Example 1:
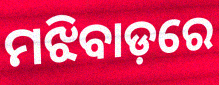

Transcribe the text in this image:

ମଝିବାଡ଼ରେ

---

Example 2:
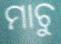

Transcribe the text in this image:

ମାଚୁ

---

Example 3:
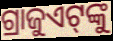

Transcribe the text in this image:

ଗ୍ରାଜୁଏଟ୍‌ଙ୍କୁ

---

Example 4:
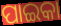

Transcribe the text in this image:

ପାଇକା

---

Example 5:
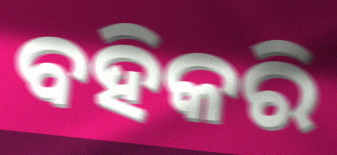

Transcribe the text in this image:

ବହିକରି